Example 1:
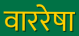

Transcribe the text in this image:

वाररेषा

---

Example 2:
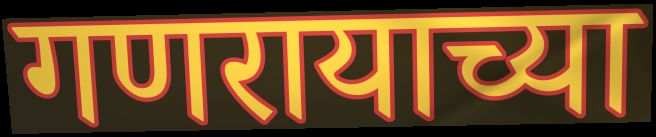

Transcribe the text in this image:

गणरायाच्या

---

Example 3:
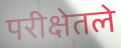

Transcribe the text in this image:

परीक्षेतले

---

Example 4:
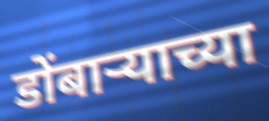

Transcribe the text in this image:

डोंबाऱ्याच्या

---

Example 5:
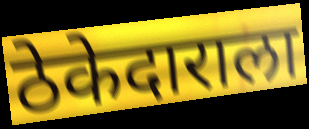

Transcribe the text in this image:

ठेकेदाराला